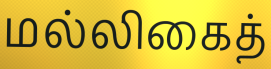
மல்லிகைத்